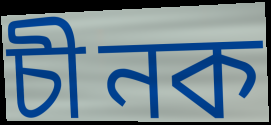
চীনক